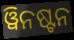
ୱିନଷ୍ଟନ